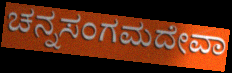
ಚನ್ನಸಂಗಮದೇವಾ